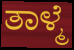
ತಾಳ್ಮೆ